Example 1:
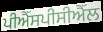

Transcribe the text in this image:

ਪੀਐੱਸਪੀਸੀਐੱਲ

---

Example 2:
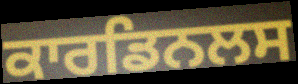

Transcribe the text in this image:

ਕਾਰਡਿਨਲਸ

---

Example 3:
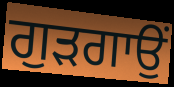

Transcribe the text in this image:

ਗੁੜਗਾਉਂ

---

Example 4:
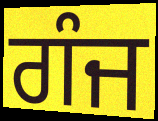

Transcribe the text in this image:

ਗੰਜ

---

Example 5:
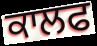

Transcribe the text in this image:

ਕਾਲਫ